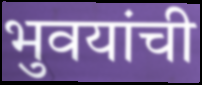
भुवयांची